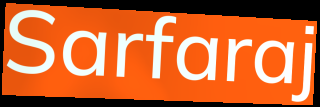
Sarfaraj